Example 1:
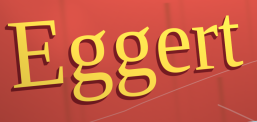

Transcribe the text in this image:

Eggert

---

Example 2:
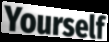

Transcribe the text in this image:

Yourself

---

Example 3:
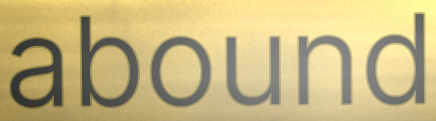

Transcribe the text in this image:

abound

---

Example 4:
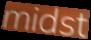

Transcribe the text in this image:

midst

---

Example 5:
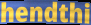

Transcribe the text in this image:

hendthi